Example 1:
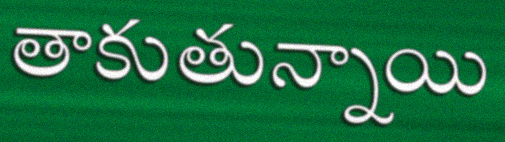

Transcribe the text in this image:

తాకుతున్నాయి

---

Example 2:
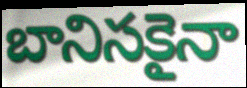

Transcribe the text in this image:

బానిసకైనా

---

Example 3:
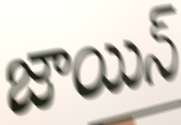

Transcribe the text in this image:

జాయిన్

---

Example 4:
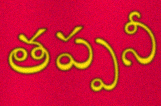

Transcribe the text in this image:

తప్పనీ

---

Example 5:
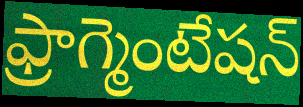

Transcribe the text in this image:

ఫ్రాగ్మెంటేషన్